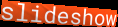
slideshow